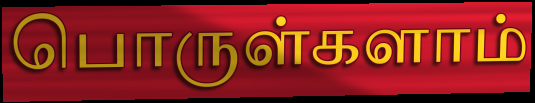
பொருள்களாம்